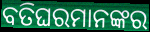
ବତିଘରମାନଙ୍କର